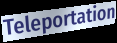
Teleportation